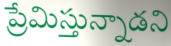
ప్రేమిస్తున్నాడని